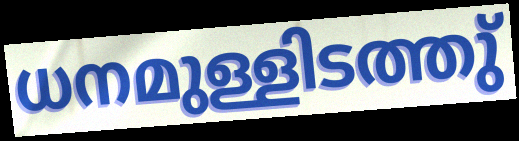
ധനമുള്ളിടത്തു്